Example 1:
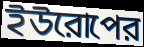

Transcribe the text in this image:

ইউরোপের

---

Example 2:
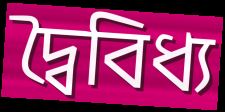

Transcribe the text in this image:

দ্বৈবিধ্য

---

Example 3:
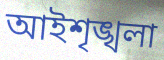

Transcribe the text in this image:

আইশৃঙ্খলা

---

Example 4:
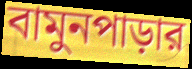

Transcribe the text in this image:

বামুনপাড়ার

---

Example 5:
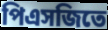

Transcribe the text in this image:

পিএসজিতে